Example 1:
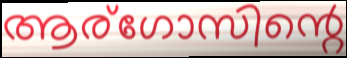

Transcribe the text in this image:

ആര്ഗോസിന്റെ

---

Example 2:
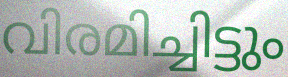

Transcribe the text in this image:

വിരമിച്ചിട്ടും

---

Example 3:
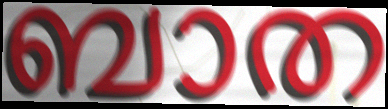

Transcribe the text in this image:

ബാത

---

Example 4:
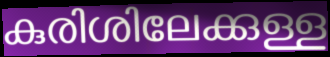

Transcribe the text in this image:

കുരിശിലേക്കുള്ള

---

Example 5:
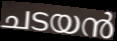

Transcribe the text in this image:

ചടയൻ